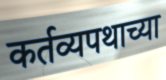
कर्तव्यपथाच्या